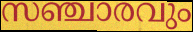
സഞ്ചാരവും